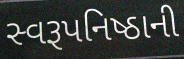
સ્વરૂપનિષ્ઠાની